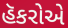
હૅકરોએ